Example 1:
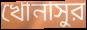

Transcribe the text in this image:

খোনাসুর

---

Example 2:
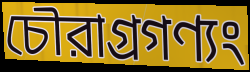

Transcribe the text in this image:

চৌরাগ্রগণ্যং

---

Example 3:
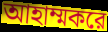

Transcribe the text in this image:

আহাম্মকরে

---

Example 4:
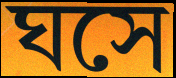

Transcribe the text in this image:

ঘসে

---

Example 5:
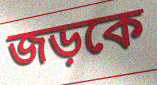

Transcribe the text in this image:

জড়কে